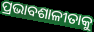
ପ୍ରଭାବଶାଳୀତାକୁ